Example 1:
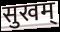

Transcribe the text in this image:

सुखम्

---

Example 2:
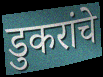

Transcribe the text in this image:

डुकरांचे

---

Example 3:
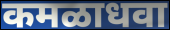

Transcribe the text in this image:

कमळाधवा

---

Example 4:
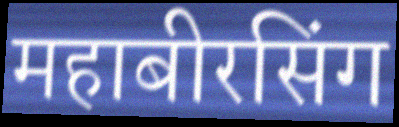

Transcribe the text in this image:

महाबीरसिंग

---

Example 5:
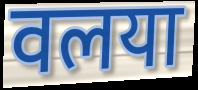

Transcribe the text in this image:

वलया